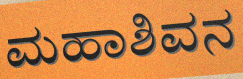
ಮಹಾಶಿವನ